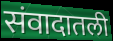
संवादातली